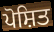
ਪੋਸ਼ਿਤ